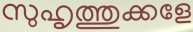
സുഹൃത്തുക്കളേ